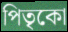
পিতৃকো